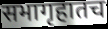
सभागृहातच